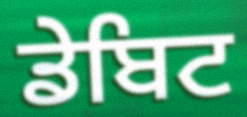
ਡੇਬਿਟ